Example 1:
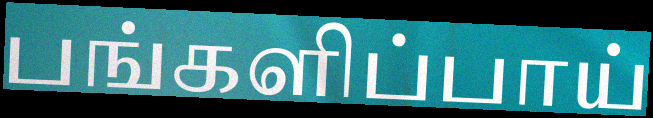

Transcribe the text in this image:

பங்களிப்பாய்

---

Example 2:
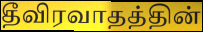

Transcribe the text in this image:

தீவிரவாதத்தின்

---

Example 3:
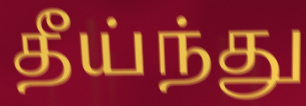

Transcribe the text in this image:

தீய்ந்து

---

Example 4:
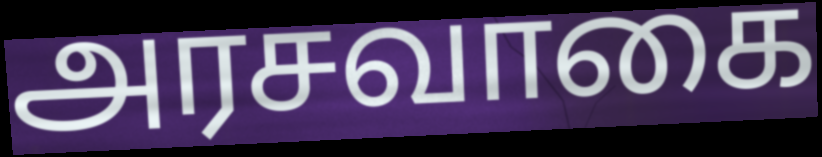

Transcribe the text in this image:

அரசவாகை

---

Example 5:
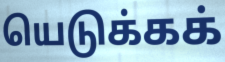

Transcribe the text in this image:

யெடுக்கக்